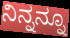
ನಿನ್ನನ್ನೂ